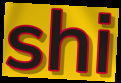
shi